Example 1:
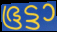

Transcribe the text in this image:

ഭൂട്ടാ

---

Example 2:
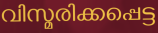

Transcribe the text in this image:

വിസ്മരിക്കപ്പെട്ട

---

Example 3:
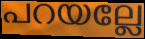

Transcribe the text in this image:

പറയല്ലേ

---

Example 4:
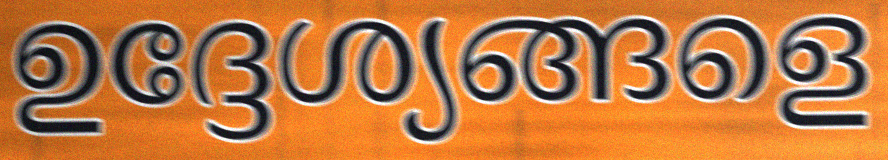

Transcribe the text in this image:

ഉദ്ദേശ്യങ്ങളെ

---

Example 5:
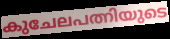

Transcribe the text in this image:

കുചേലപത്നിയുടെ